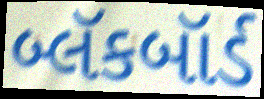
બ્લૅકબૉર્ડ